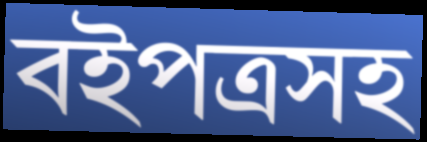
বইপত্রসহ